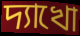
দ্যাখো